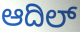
ಆದಿಲ್